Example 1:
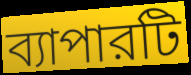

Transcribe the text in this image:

ব্যাপারটি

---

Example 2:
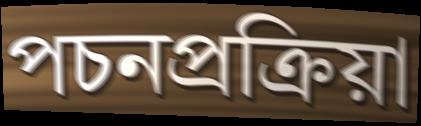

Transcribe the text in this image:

পচনপ্রক্রিয়া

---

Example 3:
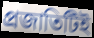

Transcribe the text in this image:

প্রজাতিটিই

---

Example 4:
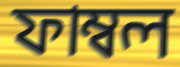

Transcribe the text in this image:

ফাম্বল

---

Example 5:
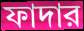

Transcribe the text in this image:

ফাদার